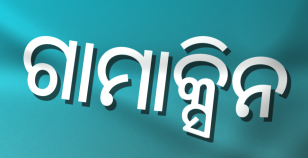
ଗାମାକ୍ସିନ